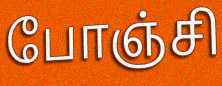
போஞ்சி